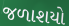
જળાશયો